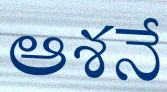
ఆశనే